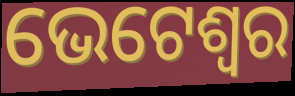
ଭେଟେଶ୍ୱର